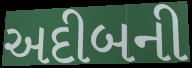
અદીબની